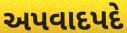
અપવાદપદે